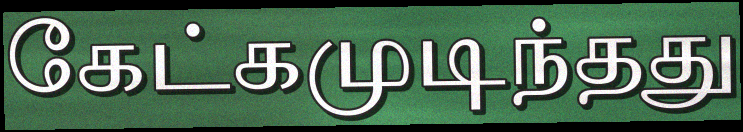
கேட்கமுடிந்தது